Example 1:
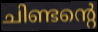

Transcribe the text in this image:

ചിണ്ടന്റെ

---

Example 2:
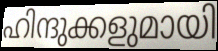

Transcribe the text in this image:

ഹിന്ദുക്കളുമായി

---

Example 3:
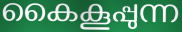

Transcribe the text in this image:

കൈകൂപ്പുന്ന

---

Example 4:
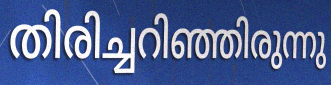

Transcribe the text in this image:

തിരിച്ചറിഞ്ഞിരുന്നു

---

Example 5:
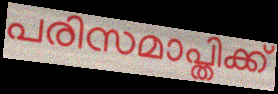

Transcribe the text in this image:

പരിസമാപ്തിക്ക്